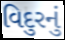
વિદુરનું